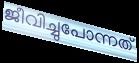
ജീവിച്ചുപോന്നത്